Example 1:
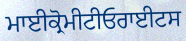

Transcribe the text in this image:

ਮਾਈਕ੍ਰੋਮੀਟੀਓਰਾਈਟਸ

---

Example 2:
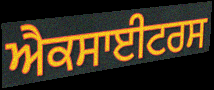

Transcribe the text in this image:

ਐਕਸਾਈਟਰਸ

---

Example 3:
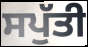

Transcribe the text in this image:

ਸਪੁੱਤੀ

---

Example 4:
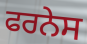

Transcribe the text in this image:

ਫਰਨੇਸ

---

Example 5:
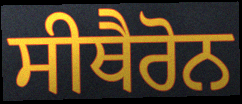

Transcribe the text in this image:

ਸੀਥੈਰੋਨ